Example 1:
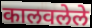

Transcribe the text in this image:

कालवलेले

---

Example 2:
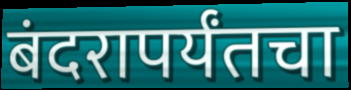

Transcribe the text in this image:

बंदरापर्यंतचा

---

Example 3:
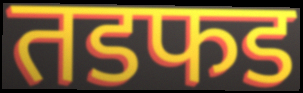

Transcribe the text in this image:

तडफड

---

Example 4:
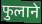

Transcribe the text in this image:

फुलाने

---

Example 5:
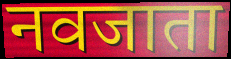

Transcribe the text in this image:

नवजाता